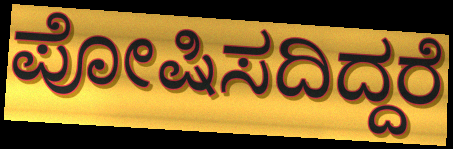
ಪೋಷಿಸದಿದ್ದರೆ